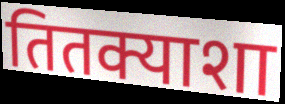
तितक्याशा